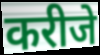
करीजे